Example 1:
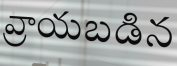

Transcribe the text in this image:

వ్రాయబడిన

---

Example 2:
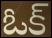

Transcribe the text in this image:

ఓక్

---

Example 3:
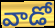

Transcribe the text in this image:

వాడో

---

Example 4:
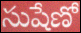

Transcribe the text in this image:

సుషేణో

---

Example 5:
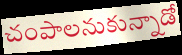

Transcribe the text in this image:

చంపాలనుకున్నాడో